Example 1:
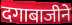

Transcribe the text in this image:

दगाबाजीने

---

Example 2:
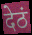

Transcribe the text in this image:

देठं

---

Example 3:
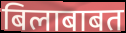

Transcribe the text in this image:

बिलाबाबत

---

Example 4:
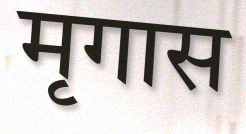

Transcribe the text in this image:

मृगास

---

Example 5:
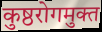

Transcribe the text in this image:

कुष्ठरोगमुक्त